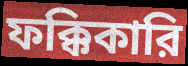
ফক্কিকারি